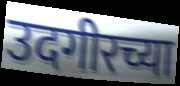
उदगीरच्या